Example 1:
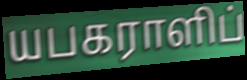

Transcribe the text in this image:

யபகராளிப்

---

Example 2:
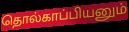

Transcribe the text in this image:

தொல்காப்பியனும்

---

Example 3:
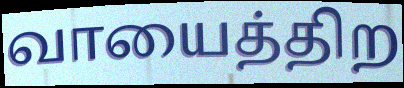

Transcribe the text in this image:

வாயைத்திற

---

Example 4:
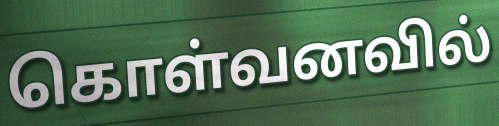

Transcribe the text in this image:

கொள்வனவில்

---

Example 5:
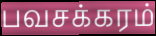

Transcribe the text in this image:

பவசக்கரம்